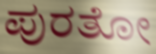
ಪುರತೋ